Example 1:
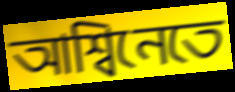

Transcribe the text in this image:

আশ্বিনেতে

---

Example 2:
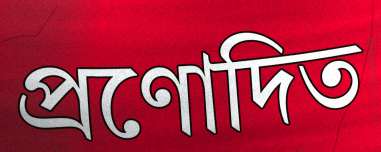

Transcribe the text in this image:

প্ৰণোদিত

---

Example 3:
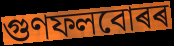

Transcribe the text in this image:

গুণফলবোৰৰ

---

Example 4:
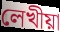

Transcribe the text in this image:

লেখীয়া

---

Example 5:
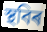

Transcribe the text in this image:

স্থবিৰ